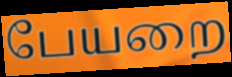
பேயறை